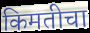
किमतीचा